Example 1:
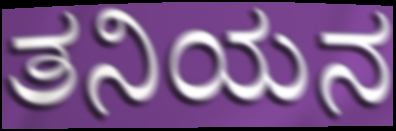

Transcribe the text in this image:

ತನಿಯನ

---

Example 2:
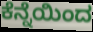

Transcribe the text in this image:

ಕೆನ್ನೆಯಿಂದ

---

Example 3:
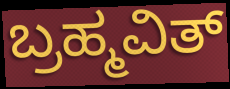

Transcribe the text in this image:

ಬ್ರಹ್ಮವಿತ್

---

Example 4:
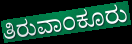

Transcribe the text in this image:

ತಿರುವಾಂಕೂರು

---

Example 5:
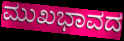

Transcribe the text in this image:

ಮುಖಭಾವದ